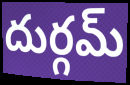
దుర్గమ్